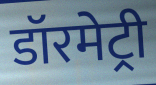
डॉरमेट्री